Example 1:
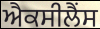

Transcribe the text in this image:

ਐਕਸੀਲੈਂਸ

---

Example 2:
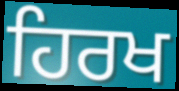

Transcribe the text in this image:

ਹਿਰਖ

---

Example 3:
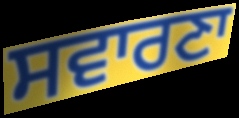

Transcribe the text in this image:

ਸਵਾਰਣਾ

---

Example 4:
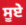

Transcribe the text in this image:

ਸੂਏ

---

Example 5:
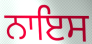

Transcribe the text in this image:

ਨਾਇਸ